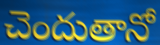
చెందుతానో